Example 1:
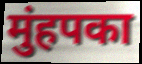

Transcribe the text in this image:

मुंहपका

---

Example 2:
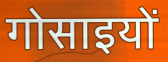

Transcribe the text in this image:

गोसाइयों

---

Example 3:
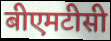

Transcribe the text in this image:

बीएमटीसी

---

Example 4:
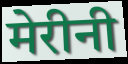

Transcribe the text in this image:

मेरीनी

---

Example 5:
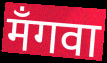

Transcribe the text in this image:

मँगवा